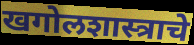
खगोलशास्त्राचे